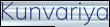
Kunvariya